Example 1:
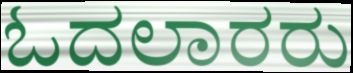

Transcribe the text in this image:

ಓದಲಾರರು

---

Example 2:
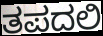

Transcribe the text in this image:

ತಪದಲಿ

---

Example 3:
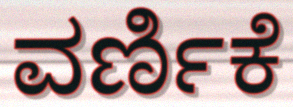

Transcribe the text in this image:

ವರ್ಣಿಕೆ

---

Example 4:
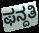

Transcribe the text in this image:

ಫನ್ದತಿ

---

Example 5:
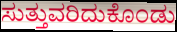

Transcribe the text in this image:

ಸುತ್ತುವರಿದುಕೊಂಡು